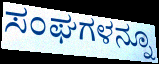
ಸಂಘಗಳನ್ನೂ